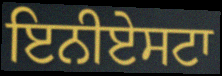
ਇਨੀਏਸਟਾ